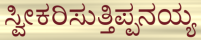
ಸ್ವೀಕರಿಸುತ್ತಿಪ್ಪನಯ್ಯ